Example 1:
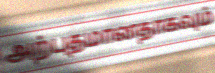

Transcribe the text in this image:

அற்புதமானதாகவும்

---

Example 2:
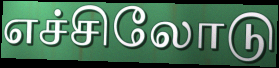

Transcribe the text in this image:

எச்சிலோடு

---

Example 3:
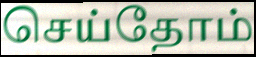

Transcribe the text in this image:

செய்தோம்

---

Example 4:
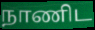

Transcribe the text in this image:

நாணிட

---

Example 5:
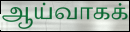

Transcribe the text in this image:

ஆய்வாகக்